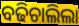
ବଢିଚାଲିଲା